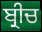
ਬ੍ਰੀਚ